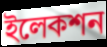
ইলেকশন